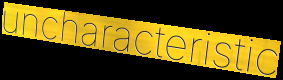
uncharacteristic